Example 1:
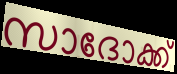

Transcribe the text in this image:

സാദോക്ക്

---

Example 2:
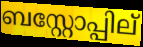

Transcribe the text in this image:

ബസ്റ്റോപ്പില്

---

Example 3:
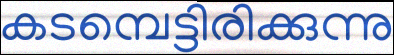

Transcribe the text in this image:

കടമ്പെട്ടിരിക്കുന്നു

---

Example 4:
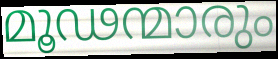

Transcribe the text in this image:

മൂഢന്മാരും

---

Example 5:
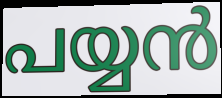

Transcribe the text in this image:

പയ്യൻ